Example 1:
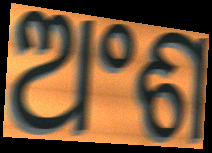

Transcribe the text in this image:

ଅଂଶ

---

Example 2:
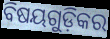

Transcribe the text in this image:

ବିଷୟଗୁଡ଼ିକର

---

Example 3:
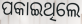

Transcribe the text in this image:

ପକାଇଥିଲେ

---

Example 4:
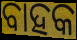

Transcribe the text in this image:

ବାହକ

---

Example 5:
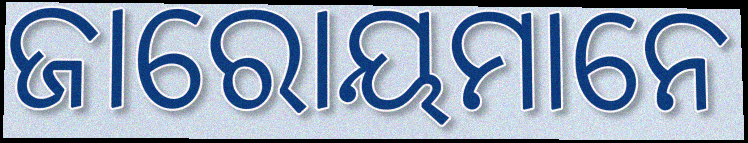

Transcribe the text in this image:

ଜାରୋୟମାନେ